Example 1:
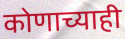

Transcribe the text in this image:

कोणाच्याही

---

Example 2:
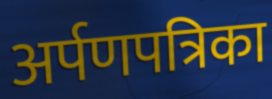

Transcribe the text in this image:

अर्पणपत्रिका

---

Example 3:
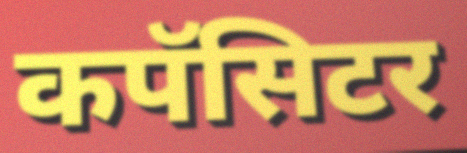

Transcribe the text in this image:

कपॅसिटर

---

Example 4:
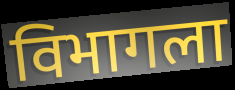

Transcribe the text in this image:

विभागला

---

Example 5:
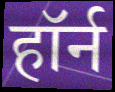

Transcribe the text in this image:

हॉर्न